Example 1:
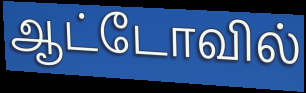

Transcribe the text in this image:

ஆட்டோவில்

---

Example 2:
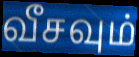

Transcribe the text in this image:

வீசவும்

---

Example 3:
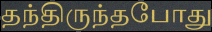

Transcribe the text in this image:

தந்திருந்தபோது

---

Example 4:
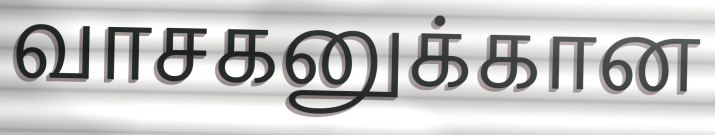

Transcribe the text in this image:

வாசகனுக்கான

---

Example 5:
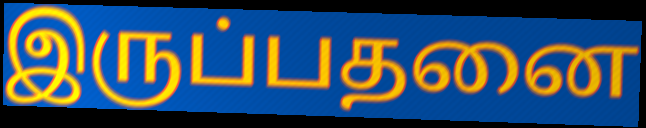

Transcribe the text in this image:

இருப்பதனை